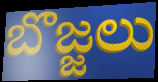
బొజ్జలు